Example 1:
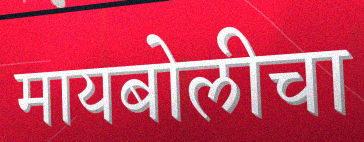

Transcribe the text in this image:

मायबोलीचा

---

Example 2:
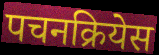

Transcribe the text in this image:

पचनक्रियेस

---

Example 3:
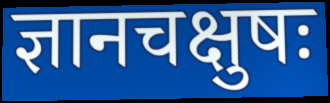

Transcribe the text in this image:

ज्ञानचक्षुषः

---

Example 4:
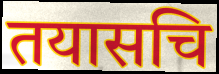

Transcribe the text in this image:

तयासचि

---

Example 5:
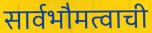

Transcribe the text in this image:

सार्वभौमत्वाची